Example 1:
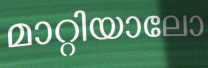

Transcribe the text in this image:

മാറ്റിയാലോ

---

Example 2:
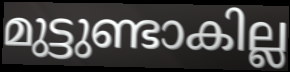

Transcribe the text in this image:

മുട്ടുണ്ടാകില്ല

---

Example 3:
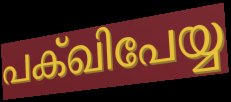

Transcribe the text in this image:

പക്ഖിപേയ്യ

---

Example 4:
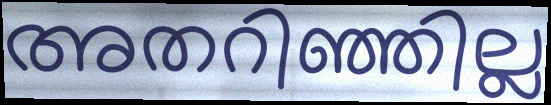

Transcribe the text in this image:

അതറിഞ്ഞില്ല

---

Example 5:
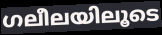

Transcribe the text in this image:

ഗലീലയിലൂടെ